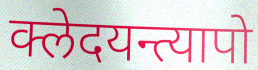
क्लेदयन्त्यापो